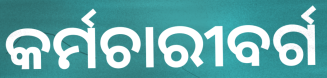
କର୍ମଚାରୀବର୍ଗ